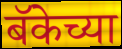
बॅकेच्या